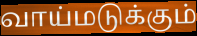
வாய்மடுக்கும்